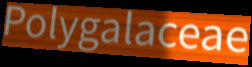
Polygalaceae